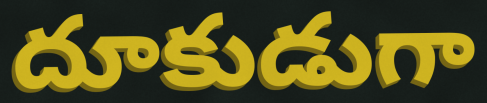
దూకుడుగా